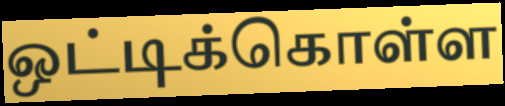
ஒட்டிக்கொள்ள